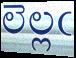
లెల్లఁ